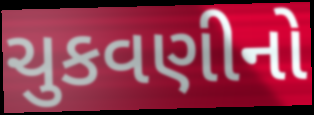
ચુકવણીનો